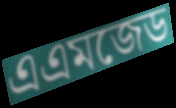
এএমজেড